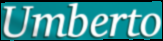
Umberto